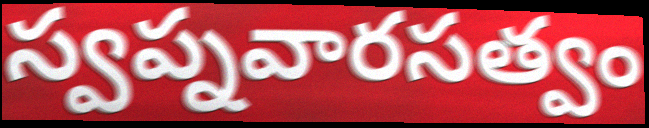
స్వప్నవారసత్వం